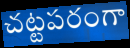
చట్టపరంగా